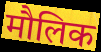
मौलिक